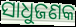
ସାଧୁଜଣକ